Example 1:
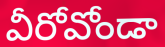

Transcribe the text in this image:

వీరోవోండా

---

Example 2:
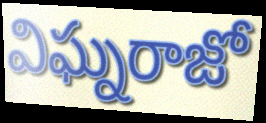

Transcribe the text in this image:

విఘ్నరాజో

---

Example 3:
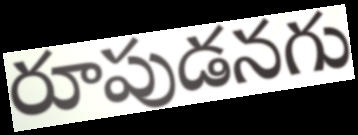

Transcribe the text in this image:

రూపుడనగు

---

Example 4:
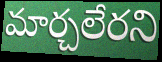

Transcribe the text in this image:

మార్చలేరని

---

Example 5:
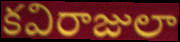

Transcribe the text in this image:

కవిరాజులా